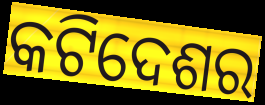
କଟିଦେଶର